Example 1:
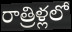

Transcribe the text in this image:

రాత్రిళ్లలో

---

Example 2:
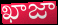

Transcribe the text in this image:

ఖాజా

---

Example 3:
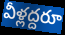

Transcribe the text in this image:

వీళ్లద్దరూ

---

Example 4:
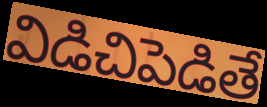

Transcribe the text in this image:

విడిచిపెడితే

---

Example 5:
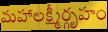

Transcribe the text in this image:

మహాలక్ష్మీర్గృహం